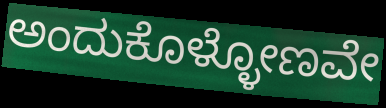
ಅಂದುಕೊಳ್ಳೋಣವೇ